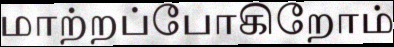
மாற்றப்போகிறோம்